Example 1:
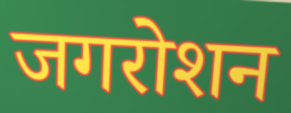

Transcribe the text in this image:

जगरोशन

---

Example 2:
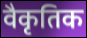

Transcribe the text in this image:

वैकृतिक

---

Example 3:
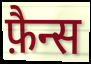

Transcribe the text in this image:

फ़ैन्स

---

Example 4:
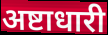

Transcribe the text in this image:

अष्टाधारी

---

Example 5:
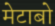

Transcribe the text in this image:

मेटाबो